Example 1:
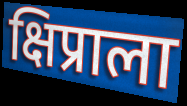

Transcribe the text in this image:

क्षिप्राला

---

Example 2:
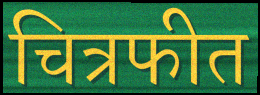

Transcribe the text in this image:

चित्रफीत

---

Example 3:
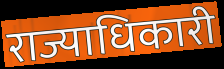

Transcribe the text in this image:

राज्याधिकारी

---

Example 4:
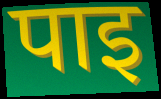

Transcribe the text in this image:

पाइ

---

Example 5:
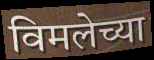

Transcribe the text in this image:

विमलेच्या